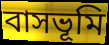
বাসভূমি